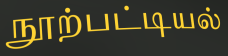
நூற்பட்டியல்